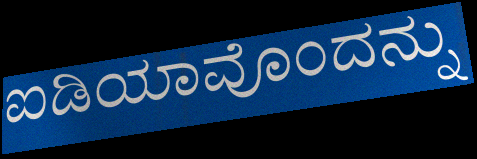
ಐಡಿಯಾವೊಂದನ್ನು